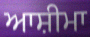
ਆਸ਼ੀਮਾ